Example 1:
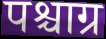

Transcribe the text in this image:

पश्चाग्र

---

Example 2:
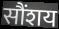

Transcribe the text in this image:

सौंशय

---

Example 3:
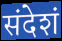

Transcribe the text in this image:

संदेशं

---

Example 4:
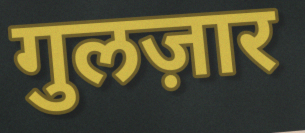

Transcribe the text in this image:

गुलज़ार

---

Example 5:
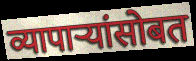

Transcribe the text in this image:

व्यापाऱ्यांसोबत